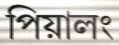
পিয়ালং